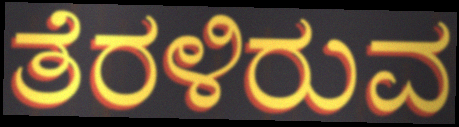
ತೆರಳಿರುವ